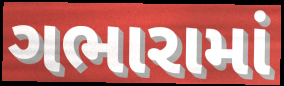
ગભારામાં